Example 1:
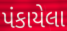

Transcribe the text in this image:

પંકાયેલા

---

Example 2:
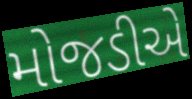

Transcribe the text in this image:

મોજડીએ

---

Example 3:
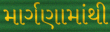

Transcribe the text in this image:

માર્ગણામાંથી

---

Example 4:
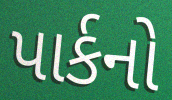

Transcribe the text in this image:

પાર્કનો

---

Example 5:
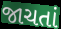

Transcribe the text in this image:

જાચતાં